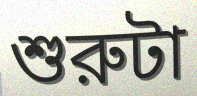
শুরুটা